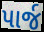
પાર્જ